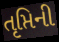
તૃપ્તિની